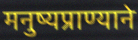
मनुष्यप्राण्याने